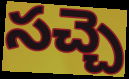
సచ్చె